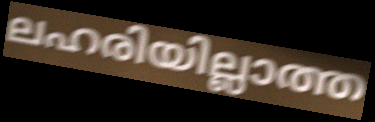
ലഹരിയില്ലാത്ത